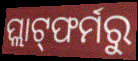
ପ୍ଲାଟ୍‌ଫର୍ମରୁ